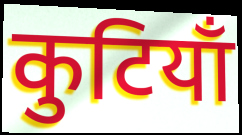
कुटियाँ